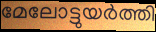
മേലോട്ടുയർത്തി